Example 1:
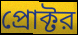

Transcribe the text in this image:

প্রোক্টর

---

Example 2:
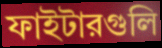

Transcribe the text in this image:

ফাইটারগুলি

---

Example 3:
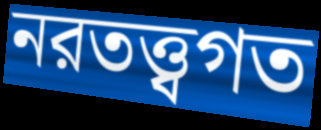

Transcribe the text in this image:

নরতত্ত্বগত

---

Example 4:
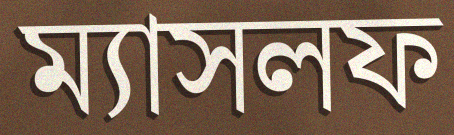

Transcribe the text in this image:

ম্যাসলফ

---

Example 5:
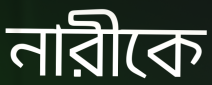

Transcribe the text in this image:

নারীকে